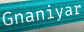
Gnaniyar